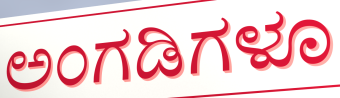
ಅಂಗಡಿಗಳೂ